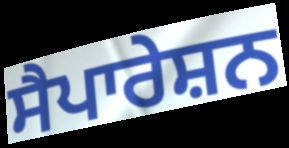
ਸੈਪਾਰੇਸ਼ਨ